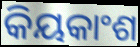
କିୟକାଂଶ